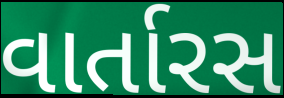
વાર્તારસ